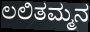
ಲಲಿತಮ್ಮನ